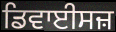
ਡਿਵਾਈਸਜ਼